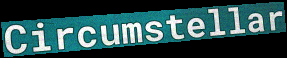
Circumstellar